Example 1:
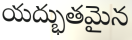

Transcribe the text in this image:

యద్భుతమైన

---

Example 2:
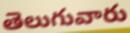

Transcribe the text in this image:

తెలుగువారు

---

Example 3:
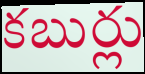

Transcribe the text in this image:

కబుర్లు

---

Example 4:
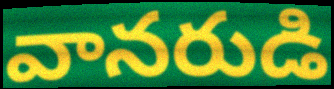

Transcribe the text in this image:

వానరుడి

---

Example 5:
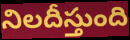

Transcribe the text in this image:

నిలదీస్తుంది